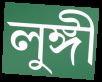
লুঙ্গী